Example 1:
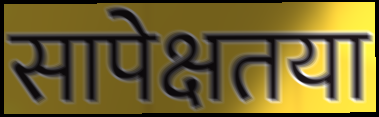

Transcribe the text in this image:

सापेक्षतया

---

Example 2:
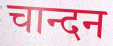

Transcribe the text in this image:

चान्दन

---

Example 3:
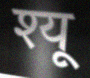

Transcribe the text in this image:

श्यू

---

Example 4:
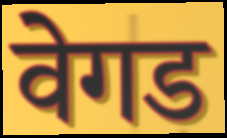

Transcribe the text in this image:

वेगड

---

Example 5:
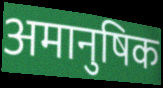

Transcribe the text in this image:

अमानुषिक